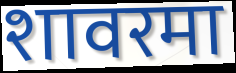
शावरमा